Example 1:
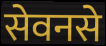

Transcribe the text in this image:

सेवनसे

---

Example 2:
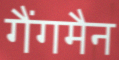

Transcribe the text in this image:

गैंगमैन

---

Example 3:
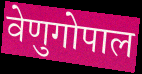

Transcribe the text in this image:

वेणुगोपाल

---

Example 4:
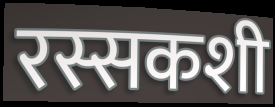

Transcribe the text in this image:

रस्सकशी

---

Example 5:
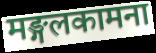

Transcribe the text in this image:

मङ्गलकामना